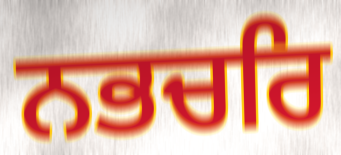
ਨਭਚਰਿ